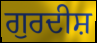
ਗੁਰਦੀਸ਼